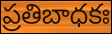
ప్రతిబాధకః